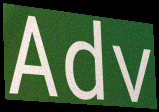
Adv